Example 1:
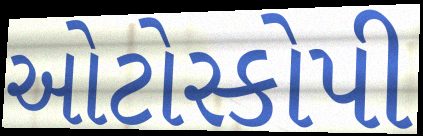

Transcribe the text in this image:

ઓટોસ્કોપી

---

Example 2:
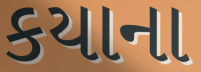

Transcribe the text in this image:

કયાના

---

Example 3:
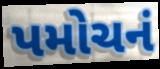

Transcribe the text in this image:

પમોચનં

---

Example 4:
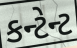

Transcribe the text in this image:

કન્ટેન્ટ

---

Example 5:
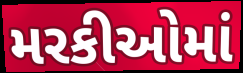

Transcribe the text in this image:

મરકીઓમાં